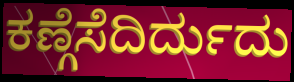
ಕಣ್ಗೆಸೆದಿರ್ದುದು